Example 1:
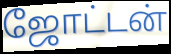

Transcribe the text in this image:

ஜோட்டன்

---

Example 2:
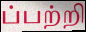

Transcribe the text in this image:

ப்பற்றி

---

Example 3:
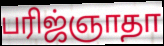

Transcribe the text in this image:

பரிஜ்ஞாதா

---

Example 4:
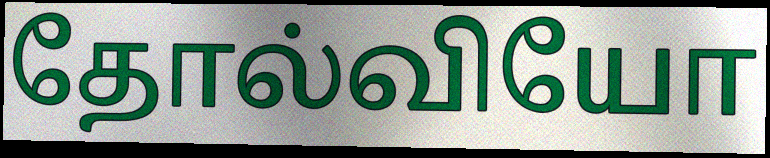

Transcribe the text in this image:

தோல்வியோ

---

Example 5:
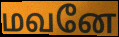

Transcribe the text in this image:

மவனே